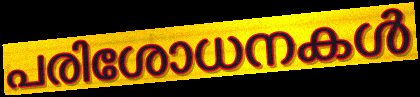
പരിശോധനകൾ